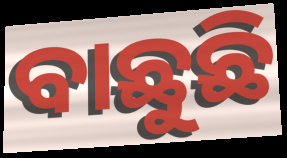
ବାଛୁଛି